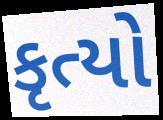
કૃત્યો